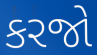
કરજો